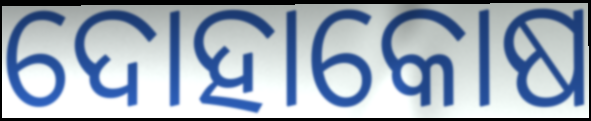
ଦୋହାକୋଷ